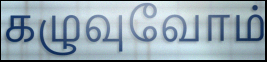
கழுவுவோம்